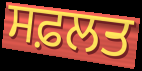
ਸਫ਼ਲਤ